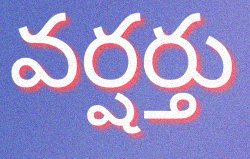
వర్షర్తు